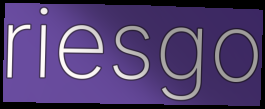
riesgo